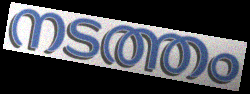
നടത്തം